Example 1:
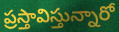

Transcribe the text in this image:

ప్రస్తావిస్తున్నారో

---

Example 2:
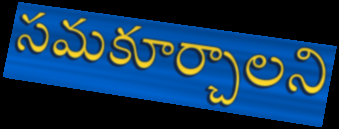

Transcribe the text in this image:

సమకూర్చాలని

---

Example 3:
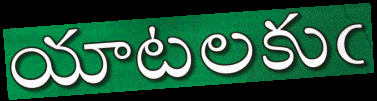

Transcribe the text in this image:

యాటలకుఁ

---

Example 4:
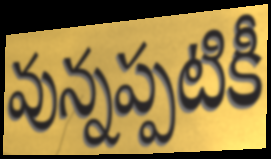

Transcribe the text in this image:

వున్నప్పటికీ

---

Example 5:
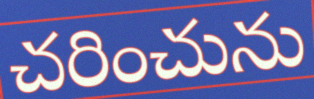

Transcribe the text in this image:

చరించును